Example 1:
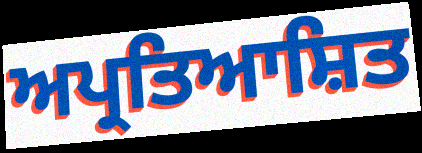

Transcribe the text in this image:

ਅਪ੍ਰਤਿਆਸ਼ਿਤ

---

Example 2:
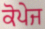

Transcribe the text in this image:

ਕੋਪੇਜ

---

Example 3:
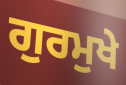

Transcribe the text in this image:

ਗੁਰਮੁਖੇ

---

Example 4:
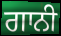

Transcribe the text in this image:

ਗਾਨੀ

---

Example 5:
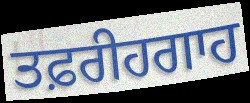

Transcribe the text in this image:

ਤਫ਼ਰੀਹਗਾਹ